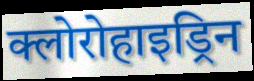
क्लोरोहाइड्रिन